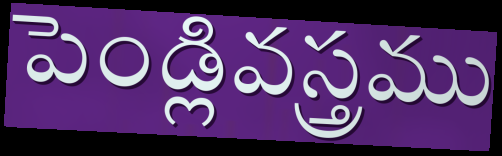
పెండ్లివస్త్రము